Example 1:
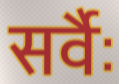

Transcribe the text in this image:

सर्वैः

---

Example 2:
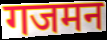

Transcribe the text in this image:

गजमन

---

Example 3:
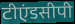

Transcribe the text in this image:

टीएंडसीपी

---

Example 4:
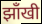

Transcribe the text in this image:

झाँखी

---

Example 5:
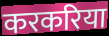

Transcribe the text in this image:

करकरिया